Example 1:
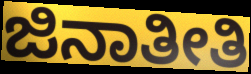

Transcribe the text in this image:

ಜಿನಾತೀತಿ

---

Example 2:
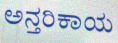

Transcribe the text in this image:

ಅನ್ತರಿಕಾಯ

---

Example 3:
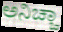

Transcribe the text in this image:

ಅನಿಚ್ಚಾ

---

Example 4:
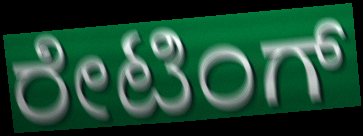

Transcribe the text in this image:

ರೇಟಿಂಗ್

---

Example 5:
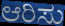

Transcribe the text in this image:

ಆರಿಸು